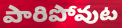
పారిపోవుట